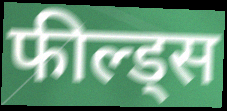
फील्ड्स